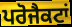
ਪਰੋਜੈਕਟਾਂ